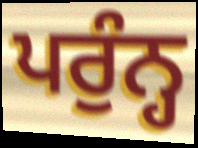
ਪਰੁੰਨ੍ਹ